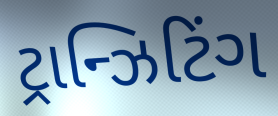
ટ્રાન્ઝિટિંગ